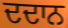
ਦਦਾਨ